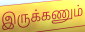
இருக்கணும்